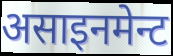
असाइनमेन्ट